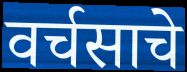
वर्चसाचे